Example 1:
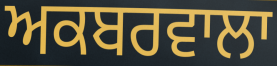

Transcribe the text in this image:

ਅਕਬਰਵਾਲਾ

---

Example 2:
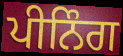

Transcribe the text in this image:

ਪੀਨਿੰਗ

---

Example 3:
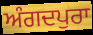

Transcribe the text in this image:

ਅੰਗਦਪੁਰਾ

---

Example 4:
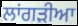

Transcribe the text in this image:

ਲਾਂਗੜੀਆ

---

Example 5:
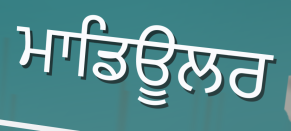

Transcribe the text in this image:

ਮਾਡਿਊਲਰ